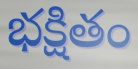
భక్షితం